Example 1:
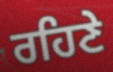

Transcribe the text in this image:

ਰਹਿਣੇ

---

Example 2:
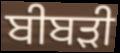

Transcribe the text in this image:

ਬੀਬੜੀ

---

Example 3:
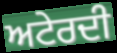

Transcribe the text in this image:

ਅਟੇਰਦੀ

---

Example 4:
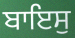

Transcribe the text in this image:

ਬਾਇਸੁ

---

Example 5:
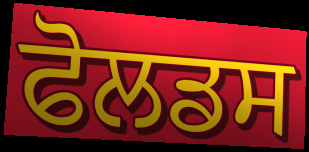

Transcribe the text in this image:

ਫੋਲਡਸ